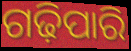
ଗଢ଼ିପାରି